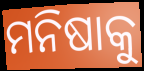
ମନିଷାକୁ